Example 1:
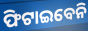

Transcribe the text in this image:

ଫିଟାଇବେନି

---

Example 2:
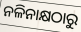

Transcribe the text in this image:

ନଳିନାକ୍ଷଠାରୁ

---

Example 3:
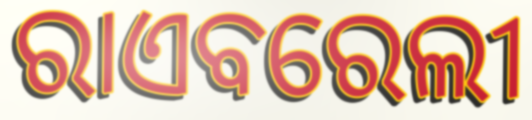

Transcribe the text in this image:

ରାଏବରେଲୀ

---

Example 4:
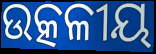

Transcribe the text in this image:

ଉତ୍କଳୀୟ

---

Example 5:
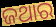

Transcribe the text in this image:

ଜଥାର